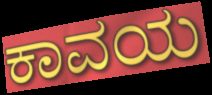
ಕಾವಯ